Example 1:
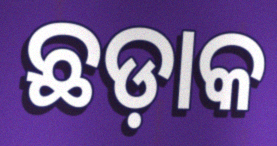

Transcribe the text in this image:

ଛଡ଼ାକ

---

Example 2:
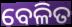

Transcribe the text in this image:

ବେଳିତ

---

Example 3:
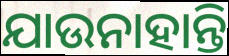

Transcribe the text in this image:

ଯାଉନାହାନ୍ତି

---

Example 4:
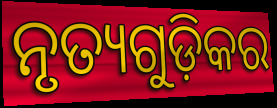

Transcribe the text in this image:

ନୃତ୍ୟଗୁଡ଼ିକର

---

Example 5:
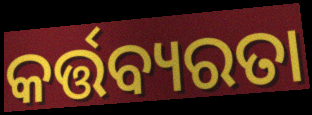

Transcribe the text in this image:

କର୍ତ୍ତବ୍ୟରତା